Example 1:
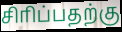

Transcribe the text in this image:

சிரிப்பதற்கு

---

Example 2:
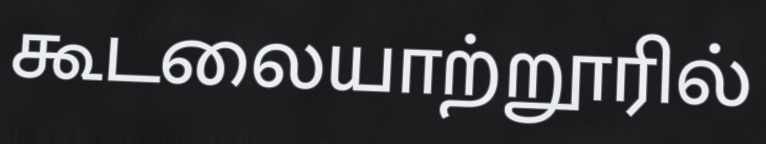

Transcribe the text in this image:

கூடலையாற்றூரில்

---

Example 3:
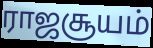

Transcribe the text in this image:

ராஜசூயம்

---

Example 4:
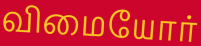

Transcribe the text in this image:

விமையோர்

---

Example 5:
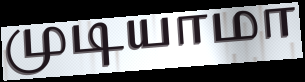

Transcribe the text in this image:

முடியாமா